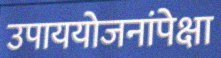
उपाययोजनांपेक्षा